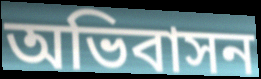
অভিবাসন